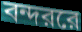
বন্দররে